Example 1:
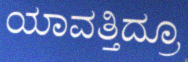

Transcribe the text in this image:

ಯಾವತ್ತಿದ್ರೂ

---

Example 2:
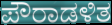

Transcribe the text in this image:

ಪೌರಾಡಳಿತ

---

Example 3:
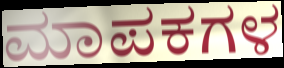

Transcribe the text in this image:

ಮಾಪಕಗಳ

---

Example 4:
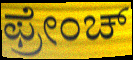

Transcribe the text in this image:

ಫ್ರೇಂಚ್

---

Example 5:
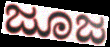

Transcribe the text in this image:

ಜೂಜ